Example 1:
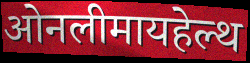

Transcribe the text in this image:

ओनलीमायहेल्थ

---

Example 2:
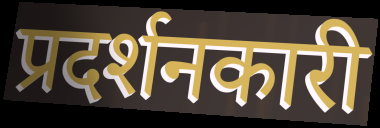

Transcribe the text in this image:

प्रदर्शनकारी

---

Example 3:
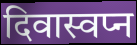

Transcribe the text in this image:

दिवास्‍वप्‍न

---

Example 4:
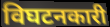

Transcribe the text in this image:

विघटनकारी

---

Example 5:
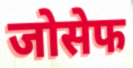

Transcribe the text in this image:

जोसेफ